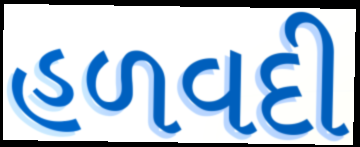
હળવદી